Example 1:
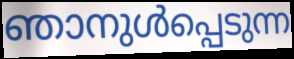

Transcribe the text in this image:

ഞാനുൾപ്പെടുന്ന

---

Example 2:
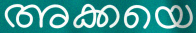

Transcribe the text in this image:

അക്കയെ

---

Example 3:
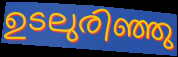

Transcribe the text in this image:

ഉടലുരിഞ്ഞു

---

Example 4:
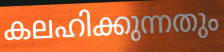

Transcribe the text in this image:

കലഹിക്കുന്നതും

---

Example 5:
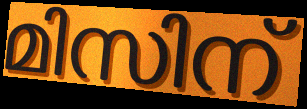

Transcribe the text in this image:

മിസിന്